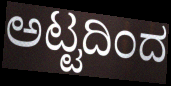
ಅಟ್ಟದಿಂದ